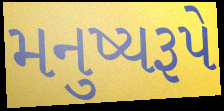
મનુષ્યરૂપે